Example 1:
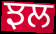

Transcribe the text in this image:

ਝਲ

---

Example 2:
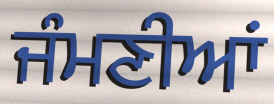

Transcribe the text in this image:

ਜੰਮਣੀਆਂ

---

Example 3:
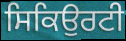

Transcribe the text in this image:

ਸਿਕਿਉਰਟੀ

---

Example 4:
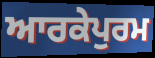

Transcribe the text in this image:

ਆਰਕੇਪੁਰਮ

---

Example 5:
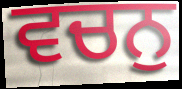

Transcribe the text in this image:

ਵਚਨੁ